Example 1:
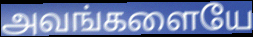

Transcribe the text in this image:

அவங்களையே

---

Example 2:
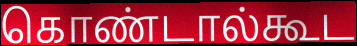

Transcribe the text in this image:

கொண்டால்கூட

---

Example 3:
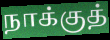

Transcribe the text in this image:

நாக்குத்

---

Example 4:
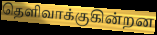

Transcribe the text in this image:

தெளிவாக்குகின்றன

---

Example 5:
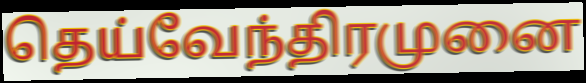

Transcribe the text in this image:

தெய்வேந்திரமுனை